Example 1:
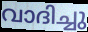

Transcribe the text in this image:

വാദിച്ചു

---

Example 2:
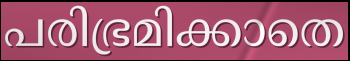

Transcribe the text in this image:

പരിഭ്രമിക്കാതെ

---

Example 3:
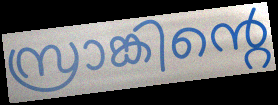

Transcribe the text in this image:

സ്രാങ്കിന്റെ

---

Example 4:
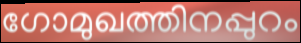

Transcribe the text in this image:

ഗോമുഖത്തിനപ്പുറം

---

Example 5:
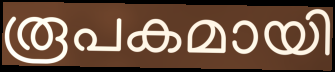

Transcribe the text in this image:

രൂപകമായി